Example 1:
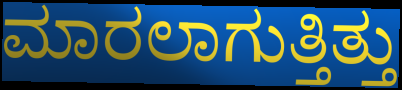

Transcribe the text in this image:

ಮಾರಲಾಗುತ್ತಿತ್ತು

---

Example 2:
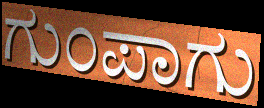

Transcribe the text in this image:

ಗುಂಪಾಗು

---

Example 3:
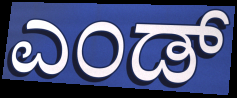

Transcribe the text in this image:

ಎಂಡ್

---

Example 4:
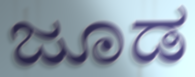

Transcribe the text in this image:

ಜೂಡ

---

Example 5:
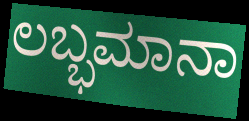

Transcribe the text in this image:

ಲಬ್ಭಮಾನಾ